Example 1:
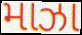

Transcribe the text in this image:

માઝા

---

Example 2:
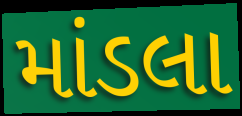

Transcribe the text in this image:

માંડલા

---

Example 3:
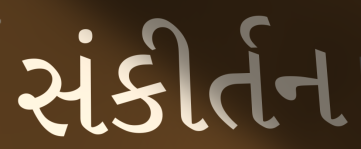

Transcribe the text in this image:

સંકીર્તન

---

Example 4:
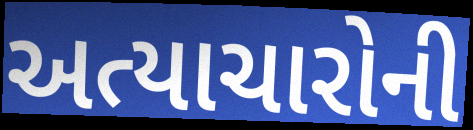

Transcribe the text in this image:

અત્યાચારોની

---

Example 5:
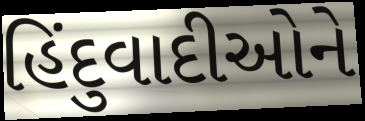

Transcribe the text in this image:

હિંદુવાદીઓને